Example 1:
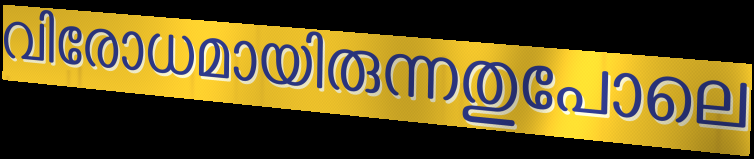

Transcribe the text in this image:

വിരോധമായിരുന്നതുപോലെ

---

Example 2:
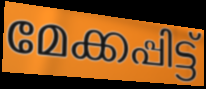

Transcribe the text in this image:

മേക്കപ്പിട്ട്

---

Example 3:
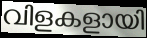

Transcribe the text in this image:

വിളകളായി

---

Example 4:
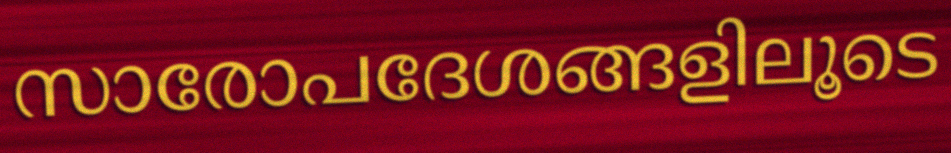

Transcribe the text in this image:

സാരോപദേശങ്ങളിലൂടെ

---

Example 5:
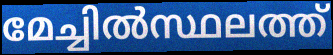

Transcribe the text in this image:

മേച്ചിൽസ്ഥലത്ത്